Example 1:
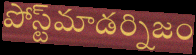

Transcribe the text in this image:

పోస్ట్‌మాడర్నిజం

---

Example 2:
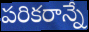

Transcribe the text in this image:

పరికరాన్నే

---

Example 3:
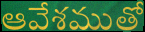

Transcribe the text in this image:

ఆవేశముతో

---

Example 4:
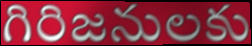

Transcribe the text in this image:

గిరిజనులకు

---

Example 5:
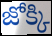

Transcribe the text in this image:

జోక్కి